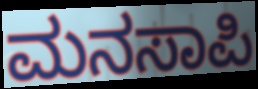
ಮನಸಾಪಿ